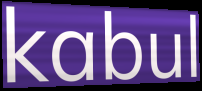
kabul